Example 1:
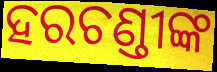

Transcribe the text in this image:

ହରଚଣ୍ଡୀଙ୍କ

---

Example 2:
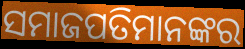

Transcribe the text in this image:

ସମାଜପତିମାନଙ୍କର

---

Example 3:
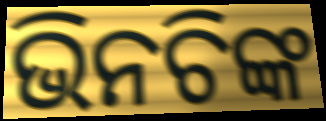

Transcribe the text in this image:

ଭିନଚିଙ୍କ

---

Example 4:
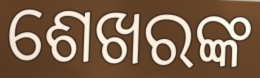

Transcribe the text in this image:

ଶେଖରଙ୍କ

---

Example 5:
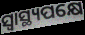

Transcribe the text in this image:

ସ୍ଵାସ୍ଥ୍ୟପକ୍ଷେ